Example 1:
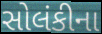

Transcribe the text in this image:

સોલંકીના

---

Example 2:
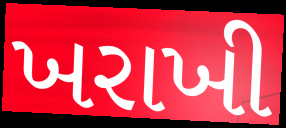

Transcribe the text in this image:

ખરાખી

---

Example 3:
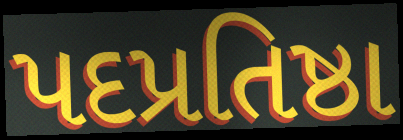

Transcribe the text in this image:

પદપ્રતિષ્ઠા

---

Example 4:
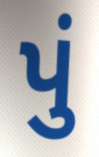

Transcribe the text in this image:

પું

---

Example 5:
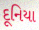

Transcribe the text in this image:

દૂનિયા